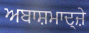
ਅਬਾਸ਼ਮਾਦ੍ਜ਼ੇ